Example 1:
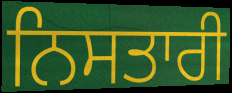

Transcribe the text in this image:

ਨਿਸਤਾਰੀ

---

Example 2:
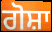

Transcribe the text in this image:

ਗੋਸ਼ਾ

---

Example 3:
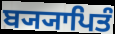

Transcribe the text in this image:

ਬ੍ਯ੍ਯਾਪਿਤੰ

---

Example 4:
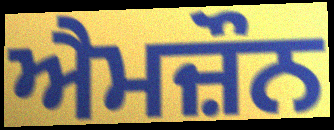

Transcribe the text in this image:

ਐਮਜ਼ੌਨ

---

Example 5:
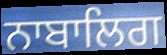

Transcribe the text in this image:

ਨਾਬਾਲਿਗ